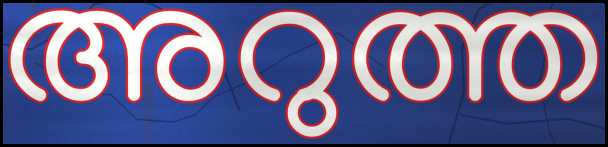
അറുത്ത